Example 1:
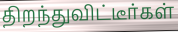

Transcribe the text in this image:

திறந்துவிட்டீர்கள்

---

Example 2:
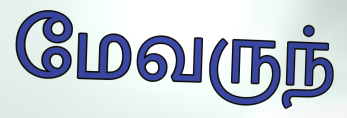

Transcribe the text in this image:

மேவருந்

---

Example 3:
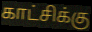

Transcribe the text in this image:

காட்சிக்கு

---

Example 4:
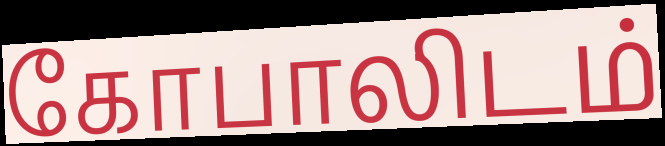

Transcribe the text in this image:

கோபாலிடம்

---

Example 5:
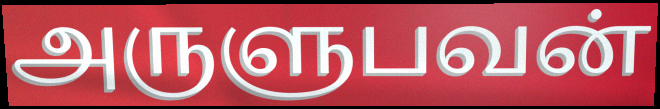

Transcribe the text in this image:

அருளுபவன்